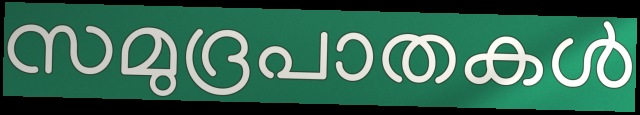
സമുദ്രപാതകൾ